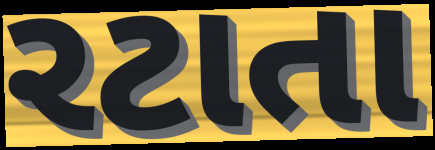
રટાતા